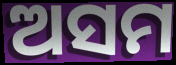
ଅସମ